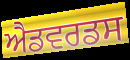
ਐਡਵਰਡਸ